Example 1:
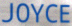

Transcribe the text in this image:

JOYCE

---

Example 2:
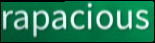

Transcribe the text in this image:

rapacious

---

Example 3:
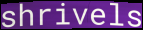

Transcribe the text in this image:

shrivels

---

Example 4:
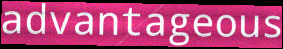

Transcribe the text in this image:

advantageous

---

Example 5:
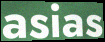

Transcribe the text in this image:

asias